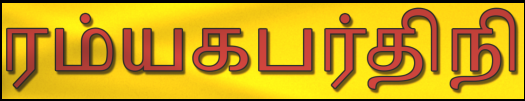
ரம்யகபர்திநி